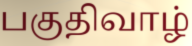
பகுதிவாழ்